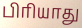
பிரியாது